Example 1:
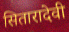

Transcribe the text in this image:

सितारादेवी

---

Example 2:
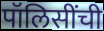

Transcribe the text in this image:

पॉलिसींची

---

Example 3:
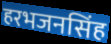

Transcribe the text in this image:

हरभजनसिंह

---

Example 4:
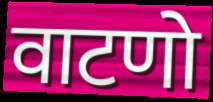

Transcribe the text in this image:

वाटणो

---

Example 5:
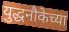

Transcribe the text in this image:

युद्धनौकेच्या